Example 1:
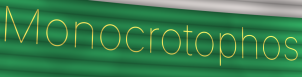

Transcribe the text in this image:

Monocrotophos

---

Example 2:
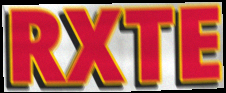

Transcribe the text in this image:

RXTE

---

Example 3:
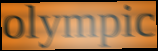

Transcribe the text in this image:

olympic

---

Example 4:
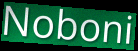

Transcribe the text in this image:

Noboni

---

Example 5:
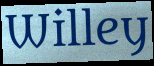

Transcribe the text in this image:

Willey